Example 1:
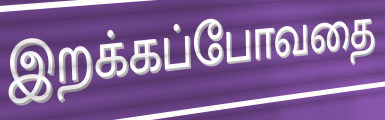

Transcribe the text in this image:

இறக்கப்போவதை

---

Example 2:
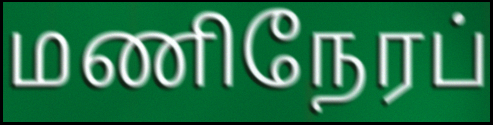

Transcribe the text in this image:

மணிநேரப்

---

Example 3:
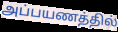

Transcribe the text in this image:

அப்பயணத்தில்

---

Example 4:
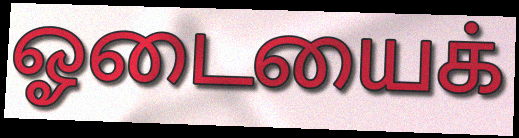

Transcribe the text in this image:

ஓடையைக்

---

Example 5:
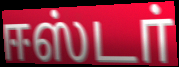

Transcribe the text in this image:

ஈஸ்டர்